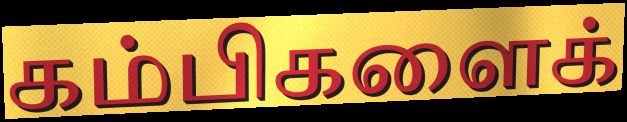
கம்பிகளைக்